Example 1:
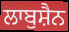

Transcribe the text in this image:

ਲਾਬੁਸ਼ੈਨ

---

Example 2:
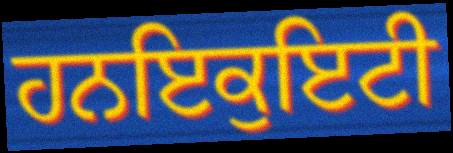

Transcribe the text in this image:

ਹਨਇਕੁਇਟੀ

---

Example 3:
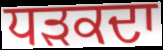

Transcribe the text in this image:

ਧੜਕਦਾ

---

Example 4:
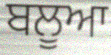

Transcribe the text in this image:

ਬਲੂਆ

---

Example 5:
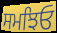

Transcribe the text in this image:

ਸਮਝਿਓ